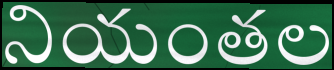
నియంతల